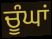
ਚੂੰਘਾਂ